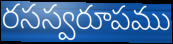
రసస్వరూపము